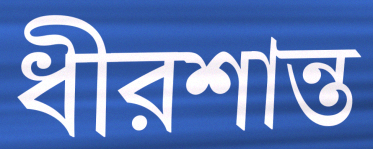
ধীরশান্ত